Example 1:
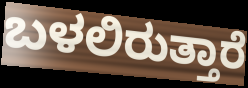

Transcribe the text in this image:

ಬಳಲಿರುತ್ತಾರೆ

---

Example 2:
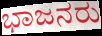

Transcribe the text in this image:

ಭಾಜನರು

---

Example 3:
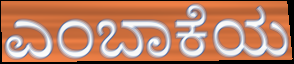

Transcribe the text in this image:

ಎಂಬಾಕೆಯ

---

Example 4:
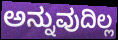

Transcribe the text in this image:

ಅನ್ನುವುದಿಲ್ಲ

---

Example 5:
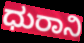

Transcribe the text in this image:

ಧುರಾನಿ